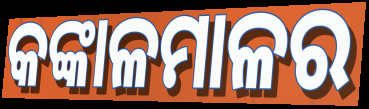
କଙ୍କାଳମାଳର